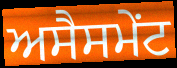
ਅਸੈਸਮੇਂਟ